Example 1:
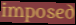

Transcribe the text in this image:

imposed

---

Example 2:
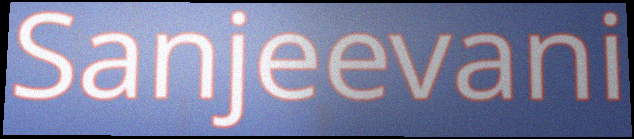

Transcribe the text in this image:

Sanjeevani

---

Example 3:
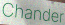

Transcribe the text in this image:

Chander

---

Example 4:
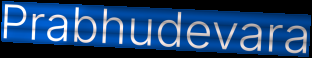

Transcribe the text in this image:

Prabhudevara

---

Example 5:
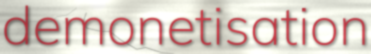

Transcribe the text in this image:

demonetisation